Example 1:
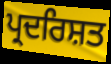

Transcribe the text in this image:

ਪ੍ਰਦਰਿਸ਼ਤ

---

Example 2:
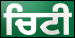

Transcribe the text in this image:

ਚਿਟੀ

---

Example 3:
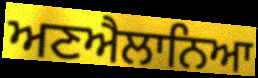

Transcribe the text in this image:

ਅਣਐਲਾਨਿਆ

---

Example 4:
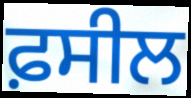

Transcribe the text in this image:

ਫ਼ਸੀਲ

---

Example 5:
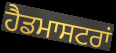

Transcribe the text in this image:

ਹੈਡਮਾਸਟਰਾਂ